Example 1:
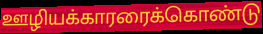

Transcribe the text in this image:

ஊழியக்காரரைக்கொண்டு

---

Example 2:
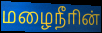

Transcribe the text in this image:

மழைநீரின்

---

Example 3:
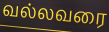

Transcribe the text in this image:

வல்லவரை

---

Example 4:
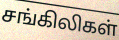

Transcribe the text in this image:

சங்கிலிகள்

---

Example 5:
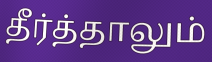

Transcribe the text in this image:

தீர்த்தாலும்